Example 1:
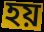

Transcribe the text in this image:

হয়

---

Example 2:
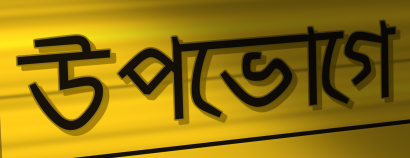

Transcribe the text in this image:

উপভোগে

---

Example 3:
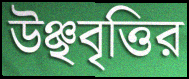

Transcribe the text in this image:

উঞ্ছবৃত্তির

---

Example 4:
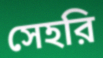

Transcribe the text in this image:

সেহরি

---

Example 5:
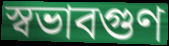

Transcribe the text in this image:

স্বভাবগুণ